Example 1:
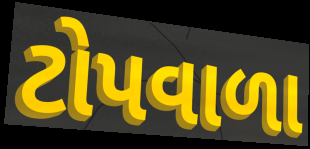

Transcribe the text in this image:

ટોપવાળા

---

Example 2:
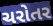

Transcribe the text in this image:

ચરોતર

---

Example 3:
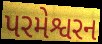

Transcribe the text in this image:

પરમેશ્વરન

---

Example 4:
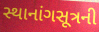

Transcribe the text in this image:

સ્થાનાંગસૂત્રની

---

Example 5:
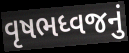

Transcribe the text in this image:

વૃષભધ્વજનું